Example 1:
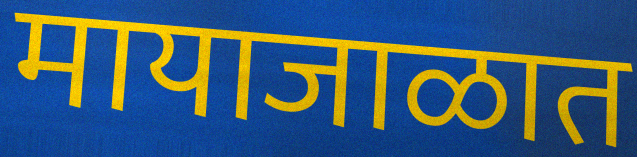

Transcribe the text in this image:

मायाजाळात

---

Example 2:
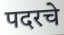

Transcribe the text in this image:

पदरचे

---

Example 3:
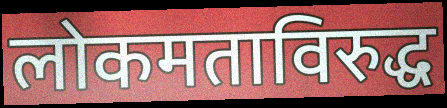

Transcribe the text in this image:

लोकमताविरुद्ध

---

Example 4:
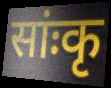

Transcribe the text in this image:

सांःकृ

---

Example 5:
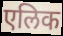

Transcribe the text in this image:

एलिक